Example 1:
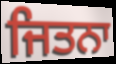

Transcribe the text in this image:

ਜਿਤਨਾ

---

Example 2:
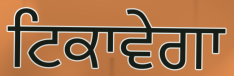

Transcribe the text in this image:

ਟਿਕਾਵੇਗਾ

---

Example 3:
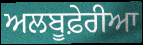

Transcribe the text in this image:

ਅਲਬੂਫ਼ੇਰੀਆ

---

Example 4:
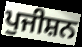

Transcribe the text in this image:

ਪੁਜੀਸ਼ਨ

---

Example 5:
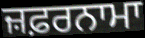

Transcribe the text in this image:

ਜ਼ਫ਼ਰਨਾਮਾ